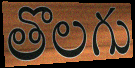
తొలగు